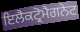
ਇਲੈਕਟ੍ਰੋਮੈਗਨੇਟ